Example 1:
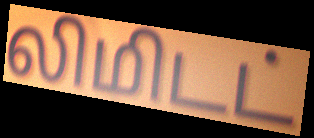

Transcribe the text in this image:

லிமிடட்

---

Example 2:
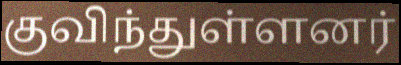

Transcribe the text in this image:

குவிந்துள்ளனர்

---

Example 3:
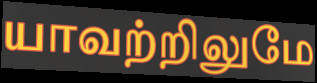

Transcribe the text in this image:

யாவற்றிலுமே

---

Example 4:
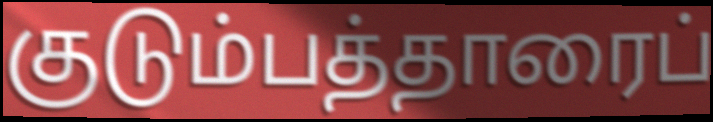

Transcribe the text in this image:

குடும்பத்தாரைப்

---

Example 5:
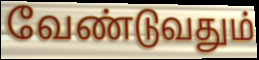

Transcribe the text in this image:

வேண்டுவதும்